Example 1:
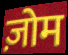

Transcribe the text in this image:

ज़ोम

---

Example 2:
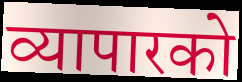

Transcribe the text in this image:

व्यापारको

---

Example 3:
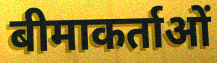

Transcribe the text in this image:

बीमाकर्ताओं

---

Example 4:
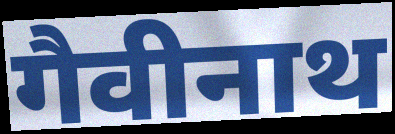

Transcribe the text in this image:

गैवीनाथ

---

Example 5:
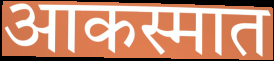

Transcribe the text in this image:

आकस्मात